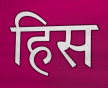
हिस